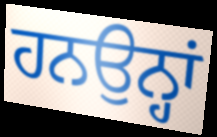
ਹਨਉਨ੍ਹਾਂ